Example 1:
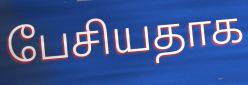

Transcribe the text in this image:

பேசியதாக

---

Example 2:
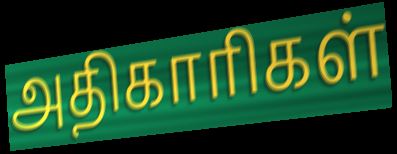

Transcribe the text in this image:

அதிகாரிகள்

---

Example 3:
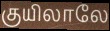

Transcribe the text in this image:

குயிலாலே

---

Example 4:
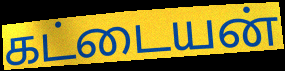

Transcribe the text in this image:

கட்டையன்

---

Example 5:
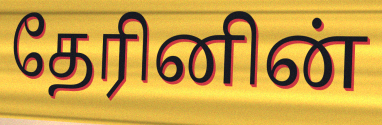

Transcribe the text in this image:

தேரினின்